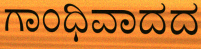
ಗಾಂಧಿವಾದದ